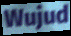
Wujud